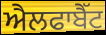
ਐਲਫਾਬੈੱਟ